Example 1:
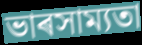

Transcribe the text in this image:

ভাৰসাম্যতা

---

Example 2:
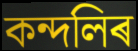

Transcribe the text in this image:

কন্দলিৰ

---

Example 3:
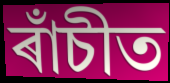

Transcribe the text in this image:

ৰাঁচীত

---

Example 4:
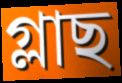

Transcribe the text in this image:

গ্লাছ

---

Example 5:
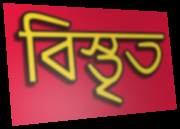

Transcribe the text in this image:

বিস্তৃত